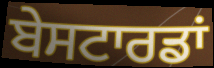
ਬੇਸਟਾਰਡਾਂ